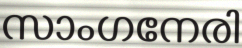
സാംഗനേരി